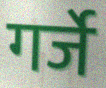
गर्जे